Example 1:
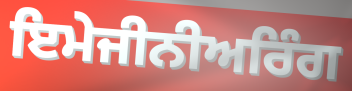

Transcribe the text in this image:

ਇਮੇਜੀਨੀਅਰਿੰਗ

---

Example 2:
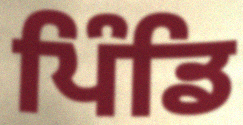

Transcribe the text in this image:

ਪਿੰਡਿ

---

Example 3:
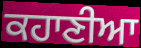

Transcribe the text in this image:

ਕਹਾਣੀਆ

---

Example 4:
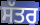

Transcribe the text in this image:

ਸੱਤਰ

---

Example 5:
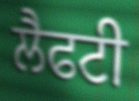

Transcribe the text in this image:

ਲੈਫਟੀ